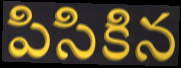
పిసికిన